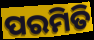
ପରମିତି